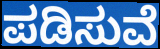
ಪಡಿಸುವೆ